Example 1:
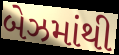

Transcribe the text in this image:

બેઝમાંથી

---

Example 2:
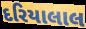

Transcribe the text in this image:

દરિયાલાલ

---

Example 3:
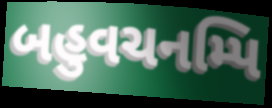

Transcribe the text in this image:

બહુવચનમ્પિ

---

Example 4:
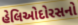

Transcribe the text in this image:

હેલિઓદોરસનો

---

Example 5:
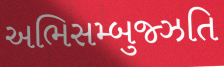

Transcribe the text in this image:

અભિસમ્બુજ્ઝતિ